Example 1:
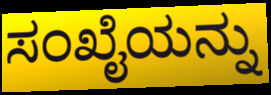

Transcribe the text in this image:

ಸಂಖೈಯನ್ನು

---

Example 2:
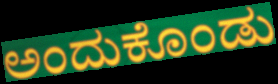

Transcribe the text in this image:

ಅಂದುಕೊಂಡು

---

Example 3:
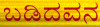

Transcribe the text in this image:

ಬಡಿದವನ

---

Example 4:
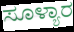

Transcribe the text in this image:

ಸೂಳ್ಯಾರ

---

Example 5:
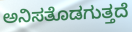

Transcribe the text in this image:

ಅನಿಸತೊಡಗುತ್ತದೆ